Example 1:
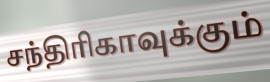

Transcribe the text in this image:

சந்திரிகாவுக்கும்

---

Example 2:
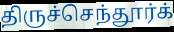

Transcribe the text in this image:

திருச்செந்தூர்க்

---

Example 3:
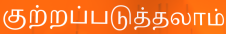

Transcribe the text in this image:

குற்றப்படுத்தலாம்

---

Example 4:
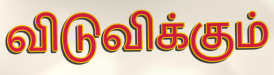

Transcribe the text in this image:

விடுவிக்கும்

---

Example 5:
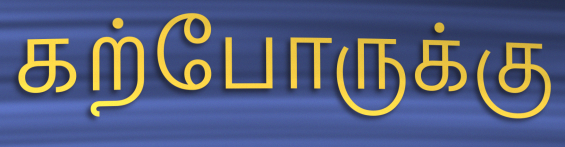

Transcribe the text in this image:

கற்போருக்கு